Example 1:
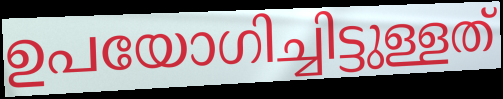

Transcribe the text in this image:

ഉപയോഗിച്ചിട്ടുള്ളത്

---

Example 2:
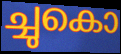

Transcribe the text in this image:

ച്ചുകൊ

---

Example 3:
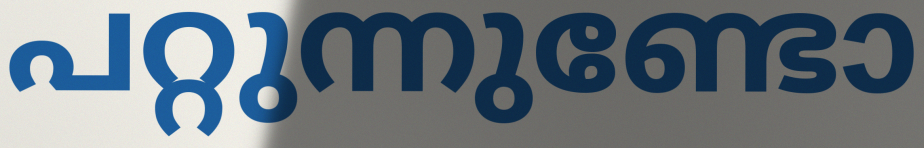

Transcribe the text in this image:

പറ്റുന്നുണ്ടോ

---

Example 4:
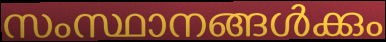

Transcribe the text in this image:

സംസ്ഥാനങ്ങൾക്കും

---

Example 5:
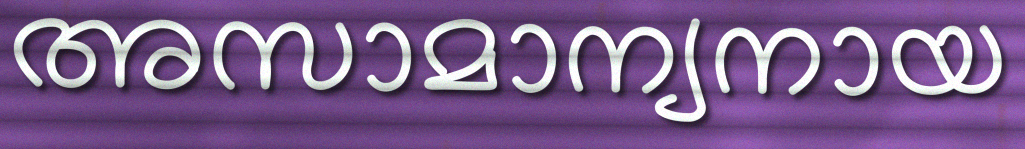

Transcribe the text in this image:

അസാമാന്യനായ